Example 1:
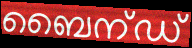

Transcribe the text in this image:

ബൈന്ഡ്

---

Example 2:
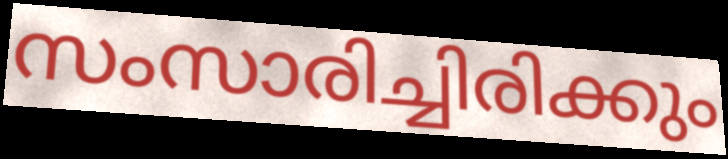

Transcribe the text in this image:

സംസാരിച്ചിരിക്കും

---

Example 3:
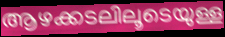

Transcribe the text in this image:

ആഴക്കടലിലൂടെയുള്ള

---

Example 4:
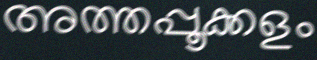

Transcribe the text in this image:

അത്തപ്പൂക്കളം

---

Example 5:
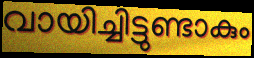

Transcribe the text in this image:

വായിച്ചിട്ടുണ്ടാകും